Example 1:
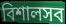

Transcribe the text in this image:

বিশালসব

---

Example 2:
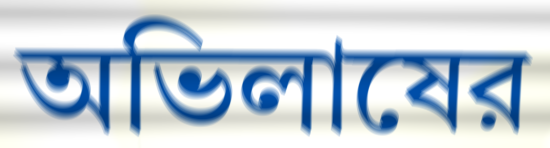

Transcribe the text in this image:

অভিলাষের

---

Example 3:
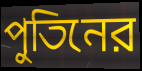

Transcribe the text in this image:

পুতিনের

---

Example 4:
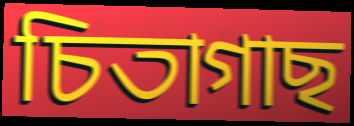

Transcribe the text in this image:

চিতাগাছ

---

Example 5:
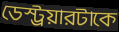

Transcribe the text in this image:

ডেস্ট্রয়ারটাকে